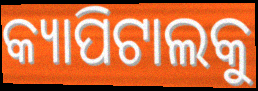
କ୍ୟାପିଟାଲକୁ